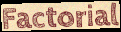
Factorial